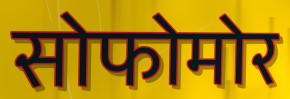
सोफोमोर